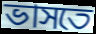
ভাসতে